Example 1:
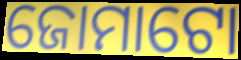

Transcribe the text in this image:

ଜୋମାଟୋ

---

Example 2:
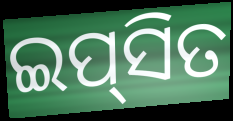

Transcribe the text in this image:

ଇପ୍‌ସିତ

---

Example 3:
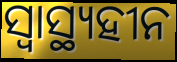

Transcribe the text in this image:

ସ୍ୱାସ୍ଥ୍ୟହୀନ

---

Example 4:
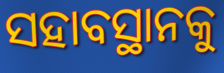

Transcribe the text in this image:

ସହାବସ୍ଥାନକୁ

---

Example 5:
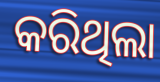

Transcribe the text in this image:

କରିଥିଲା